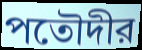
পতৌদীর